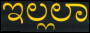
ಇಲ್ಲಲಾ